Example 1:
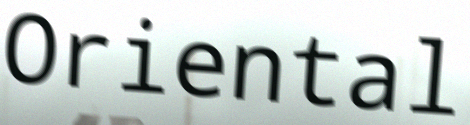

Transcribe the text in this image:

Oriental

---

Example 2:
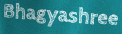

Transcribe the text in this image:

Bhagyashree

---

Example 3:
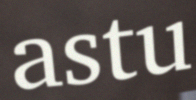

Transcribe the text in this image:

astu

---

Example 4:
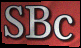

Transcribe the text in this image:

SBc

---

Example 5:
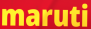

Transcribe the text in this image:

maruti